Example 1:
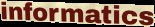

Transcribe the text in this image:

informatics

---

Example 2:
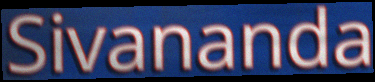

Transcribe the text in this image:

Sivananda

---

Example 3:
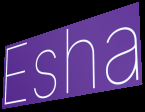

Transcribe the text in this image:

Esha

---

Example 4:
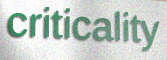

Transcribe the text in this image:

criticality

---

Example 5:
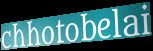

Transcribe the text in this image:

chhotobelai